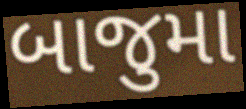
બાજુમા